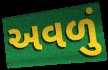
અવળું